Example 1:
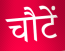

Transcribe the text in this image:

चौटें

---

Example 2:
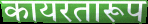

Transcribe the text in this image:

कायरतारूप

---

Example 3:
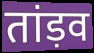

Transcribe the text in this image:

तांड़व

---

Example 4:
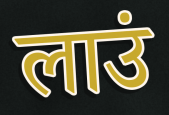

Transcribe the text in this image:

लाउं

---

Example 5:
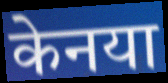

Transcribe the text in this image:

केनया